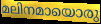
മലിനമായൊരു